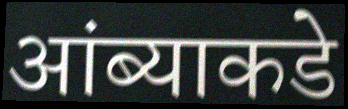
आंब्याकडे